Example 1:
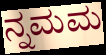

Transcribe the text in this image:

ನ್ನಮಮ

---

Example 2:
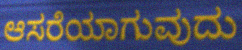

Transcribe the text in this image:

ಆಸರೆಯಾಗುವುದು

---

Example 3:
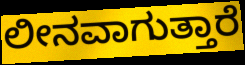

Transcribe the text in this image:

ಲೀನವಾಗುತ್ತಾರೆ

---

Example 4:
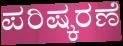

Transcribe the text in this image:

ಪರಿಷ್ಕರಣೆ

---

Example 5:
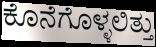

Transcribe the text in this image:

ಕೊನೆಗೊಳ್ಳಲಿತ್ತು